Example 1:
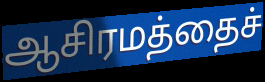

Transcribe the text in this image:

ஆசிரமத்தைச்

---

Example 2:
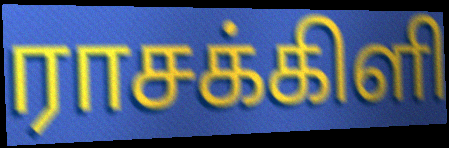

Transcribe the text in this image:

ராசக்கிளி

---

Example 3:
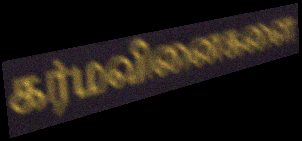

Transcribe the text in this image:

கர்மவினைகளை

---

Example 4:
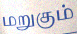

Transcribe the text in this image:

மறுகும்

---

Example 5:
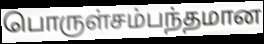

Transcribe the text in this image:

பொருள்சம்பந்தமான